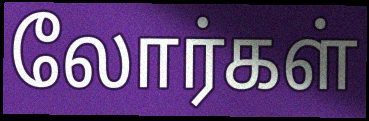
லோர்கள்